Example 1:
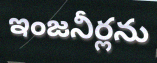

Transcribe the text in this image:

ఇంజనీర్లను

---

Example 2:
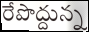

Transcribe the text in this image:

రేపొద్దున్న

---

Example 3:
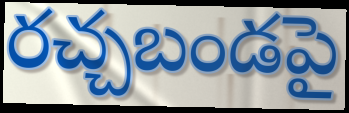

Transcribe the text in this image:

రచ్చబండపై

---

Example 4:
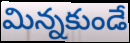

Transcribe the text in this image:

మిన్నకుండే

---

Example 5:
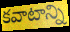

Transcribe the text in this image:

కవాటాన్ని